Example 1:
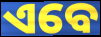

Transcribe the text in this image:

ଏବେ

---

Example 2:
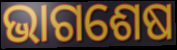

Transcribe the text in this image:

ଭାଗଶେଷ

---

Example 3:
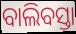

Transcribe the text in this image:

ବାଲିବସ୍ତା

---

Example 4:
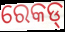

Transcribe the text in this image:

ରେକଡ୍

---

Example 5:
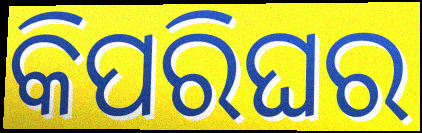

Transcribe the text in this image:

କିପରିଘର